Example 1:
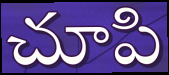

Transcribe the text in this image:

చూపి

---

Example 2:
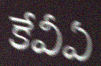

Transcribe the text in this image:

కేవీఏ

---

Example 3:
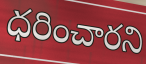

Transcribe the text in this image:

ధరించారని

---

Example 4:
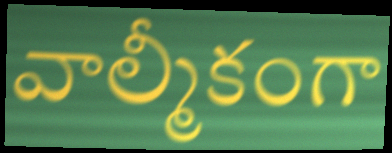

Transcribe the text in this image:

వాల్మీకంగా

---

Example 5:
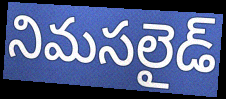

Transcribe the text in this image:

నిమసలైడ్